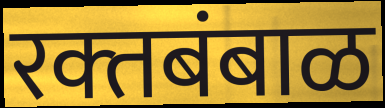
रक्‍तबंबाळ